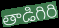
తాడిగిరి